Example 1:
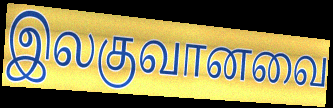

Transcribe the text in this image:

இலகுவானவை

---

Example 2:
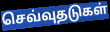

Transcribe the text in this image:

செவ்வுதடுகள்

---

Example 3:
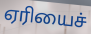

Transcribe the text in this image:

ஏரியைச்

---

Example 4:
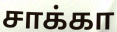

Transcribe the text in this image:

சாக்கா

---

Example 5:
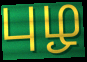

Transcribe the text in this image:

புழ